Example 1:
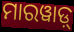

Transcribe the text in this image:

ମାରୱାଡ଼୍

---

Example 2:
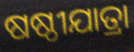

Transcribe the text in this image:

ଷଷ୍ଠୀଯାତ୍ରା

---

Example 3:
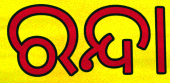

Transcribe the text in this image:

ରନ୍ଦା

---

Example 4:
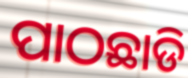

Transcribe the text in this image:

ପାଠଛାଡି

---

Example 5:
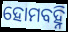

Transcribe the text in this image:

ହୋମବହ୍ନି